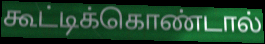
கூட்டிக்கொண்டால்